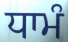
ਧਾਮੰ